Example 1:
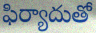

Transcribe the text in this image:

ఫిర్యాదుతో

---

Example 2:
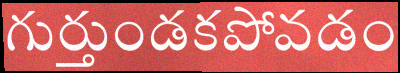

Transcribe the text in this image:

గుర్తుండకపోవడం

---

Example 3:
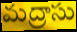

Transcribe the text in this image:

మద్రాసు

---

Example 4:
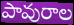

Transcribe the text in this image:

పావురాల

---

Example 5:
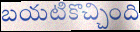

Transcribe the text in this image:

బయటికొచ్చింది